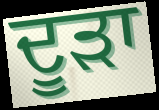
ਦੂੜਾ